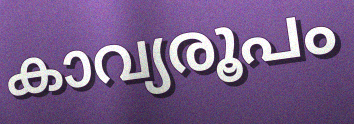
കാവ്യരൂപം